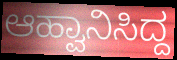
ಆಹ್ವಾನಿಸಿದ್ದ